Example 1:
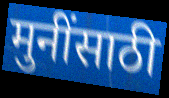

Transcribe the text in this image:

मुनींसाठी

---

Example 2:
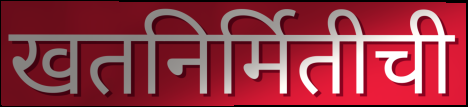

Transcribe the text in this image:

खतनिर्मितीची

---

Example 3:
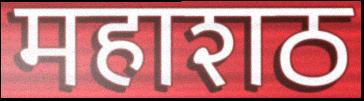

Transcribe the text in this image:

महाशठ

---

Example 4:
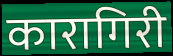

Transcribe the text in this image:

कारागिरी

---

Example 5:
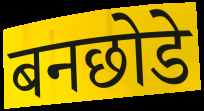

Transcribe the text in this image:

बनछोडे